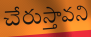
చేరుస్తావని